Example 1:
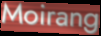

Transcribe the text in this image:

Moirang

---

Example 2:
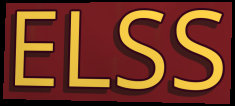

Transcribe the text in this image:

ELSS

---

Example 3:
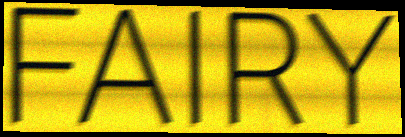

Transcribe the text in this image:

FAIRY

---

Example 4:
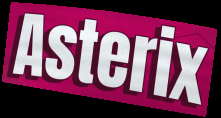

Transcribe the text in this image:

Asterix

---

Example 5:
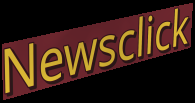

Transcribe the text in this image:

Newsclick